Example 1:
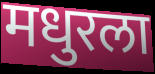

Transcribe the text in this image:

मधुरला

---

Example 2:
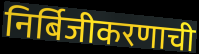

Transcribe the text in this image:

निर्बिजीकरणाची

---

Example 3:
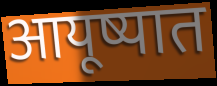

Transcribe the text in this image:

आयूष्यात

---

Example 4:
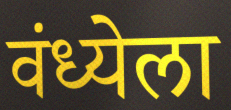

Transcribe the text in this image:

वंध्येला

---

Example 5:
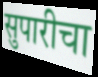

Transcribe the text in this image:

सुपारीचा